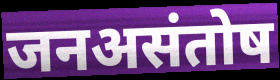
जनअसंतोष